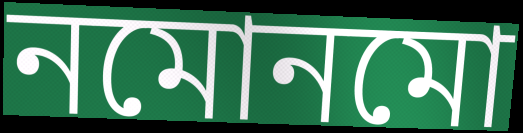
নমোনমো